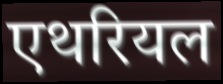
एथरियल